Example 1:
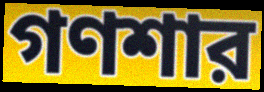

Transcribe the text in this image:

গণশার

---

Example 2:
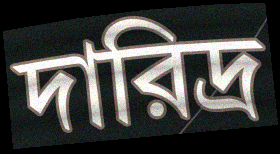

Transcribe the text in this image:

দারিদ্র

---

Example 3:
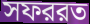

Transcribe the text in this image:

সফররত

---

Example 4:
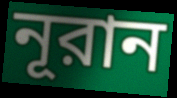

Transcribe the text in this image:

নূরান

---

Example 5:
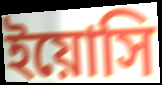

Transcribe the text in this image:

ইয়োসি